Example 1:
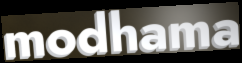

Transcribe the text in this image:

modhama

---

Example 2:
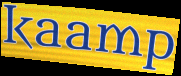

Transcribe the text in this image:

kaamp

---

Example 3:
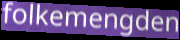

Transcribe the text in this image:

folkemengden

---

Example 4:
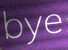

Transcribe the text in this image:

bye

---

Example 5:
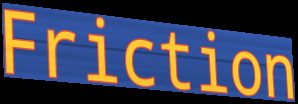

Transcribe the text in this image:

Friction